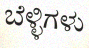
ಬೆಳ್ಳಿಗಳು